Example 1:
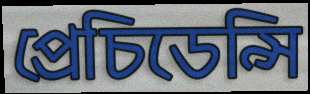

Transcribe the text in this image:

প্ৰেচিডেন্সি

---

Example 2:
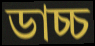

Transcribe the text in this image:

ডাচ্চ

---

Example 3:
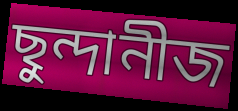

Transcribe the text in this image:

ছুন্দানীজ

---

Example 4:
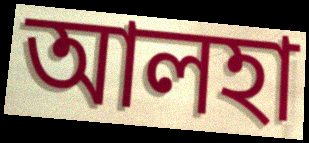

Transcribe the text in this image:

আলহা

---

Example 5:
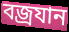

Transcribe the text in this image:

বজ্ৰযান